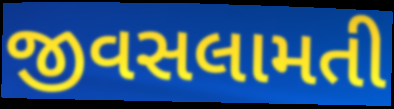
જીવસલામતી